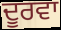
ਦੂਰਵਾ